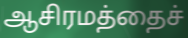
ஆசிரமத்தைச்